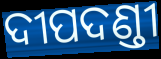
ଦୀପଦଣ୍ଡୀ